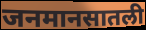
जनमानसातली